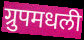
ग्रुपमधली